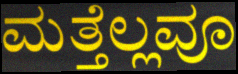
ಮತ್ತೆಲ್ಲವೂ